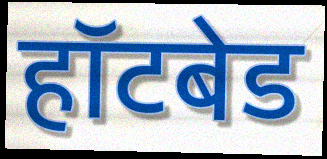
हॉटबेड